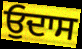
ਓੁਦਾਸ